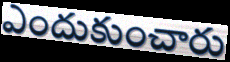
ఎందుకుంచారు